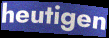
heutigen